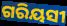
ଗରିୟସୀ